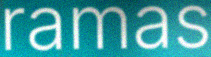
ramas